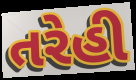
તરેહી